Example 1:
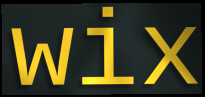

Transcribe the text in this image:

wix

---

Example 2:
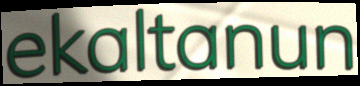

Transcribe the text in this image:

ekaltanun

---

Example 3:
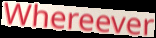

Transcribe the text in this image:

Whereever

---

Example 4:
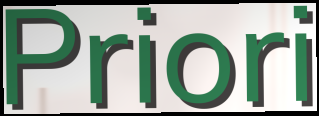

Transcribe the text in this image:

Priori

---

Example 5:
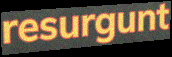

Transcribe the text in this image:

resurgunt